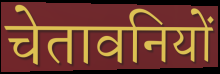
चेतावनियों